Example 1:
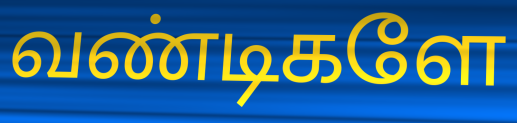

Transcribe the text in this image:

வண்டிகளே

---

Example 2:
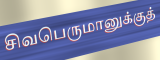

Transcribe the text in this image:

சிவபெருமானுக்குத்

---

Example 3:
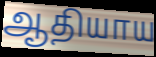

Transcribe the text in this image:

ஆதியாய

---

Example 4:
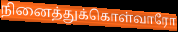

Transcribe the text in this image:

நினைத்துக்கொள்வாரோ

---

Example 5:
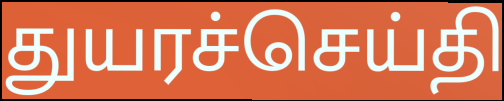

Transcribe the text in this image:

துயரச்செய்தி